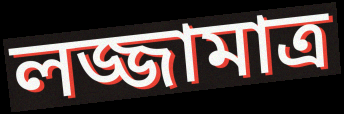
লজ্জামাত্র